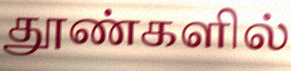
தூண்களில்